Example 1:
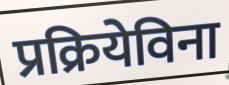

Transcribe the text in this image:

प्रक्रियेविना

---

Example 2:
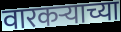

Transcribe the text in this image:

वारकऱ्याच्या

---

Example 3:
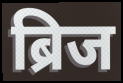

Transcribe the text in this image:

ब्रिज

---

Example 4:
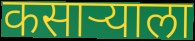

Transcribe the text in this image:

कसाऱ्याला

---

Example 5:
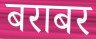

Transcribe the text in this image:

बराबर